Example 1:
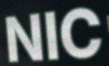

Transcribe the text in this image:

NIC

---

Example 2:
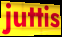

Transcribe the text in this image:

juttis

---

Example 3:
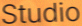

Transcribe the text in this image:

Studio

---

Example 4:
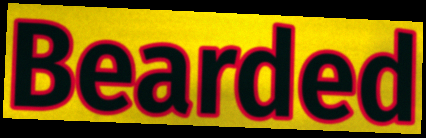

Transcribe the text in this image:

Bearded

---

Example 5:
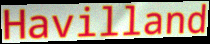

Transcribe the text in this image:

Havilland